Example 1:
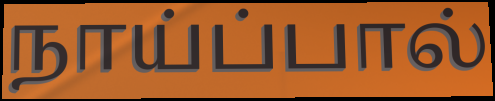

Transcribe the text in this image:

நாய்ப்பால்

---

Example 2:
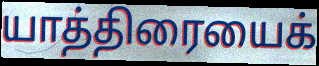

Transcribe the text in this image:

யாத்திரையைக்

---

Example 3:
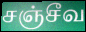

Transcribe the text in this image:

சஞ்சீவ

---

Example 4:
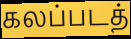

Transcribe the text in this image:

கலப்படத்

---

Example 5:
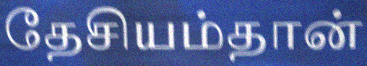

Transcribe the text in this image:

தேசியம்தான்